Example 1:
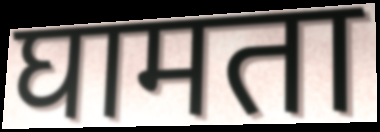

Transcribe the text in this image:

घामता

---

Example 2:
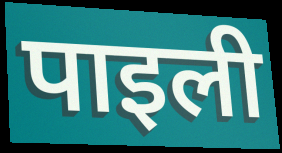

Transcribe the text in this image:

पाइली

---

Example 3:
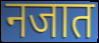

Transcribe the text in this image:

नजात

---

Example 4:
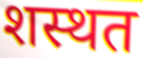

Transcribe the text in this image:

शस्थत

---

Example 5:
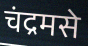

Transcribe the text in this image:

चंद्रमसे